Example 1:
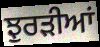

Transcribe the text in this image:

ਝੁਰੜੀਆਂ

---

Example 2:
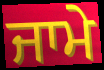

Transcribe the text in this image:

ਜਾਮੇ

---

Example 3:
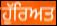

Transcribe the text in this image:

ਹੁੱਰਿਅਤ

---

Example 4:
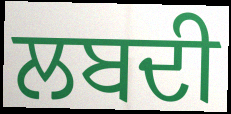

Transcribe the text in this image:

ਲਬਦੀ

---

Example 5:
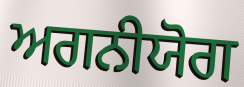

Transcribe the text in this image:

ਅਗਨੀਯੋਗ